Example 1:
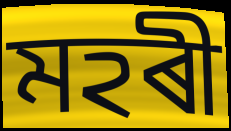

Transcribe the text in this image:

মহৰী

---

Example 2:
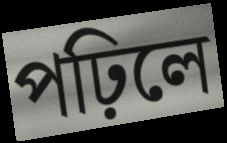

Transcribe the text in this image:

পঢ়িলে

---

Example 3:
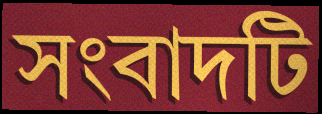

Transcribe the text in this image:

সংবাদটি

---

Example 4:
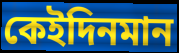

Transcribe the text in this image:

কেইদিনমান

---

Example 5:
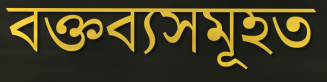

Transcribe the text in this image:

বক্তব্যসমূহত